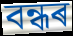
বন্ধৰ